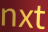
nxt